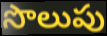
సొలుపు